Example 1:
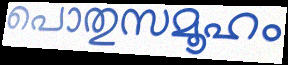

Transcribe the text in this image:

പൊതുസമൂഹം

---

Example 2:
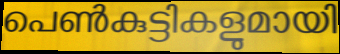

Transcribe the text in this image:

പെൺകുട്ടികളുമായി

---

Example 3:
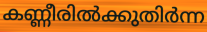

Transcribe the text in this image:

കണ്ണീരിൽക്കുതിർന്ന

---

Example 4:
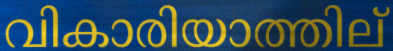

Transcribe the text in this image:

വികാരിയാത്തില്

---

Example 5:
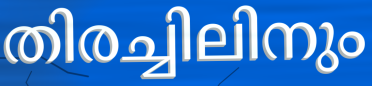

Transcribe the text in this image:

തിരച്ചിലിനും